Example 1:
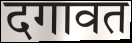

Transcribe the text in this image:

दगावत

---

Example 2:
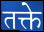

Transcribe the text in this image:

तक्ते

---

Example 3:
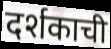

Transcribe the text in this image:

दर्शकाची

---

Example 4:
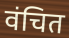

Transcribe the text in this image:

वंचित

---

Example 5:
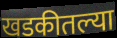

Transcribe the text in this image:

खडकीतल्या